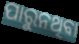
ପାରୁନଥିବା